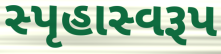
સ્પૃહાસ્વરૂપ